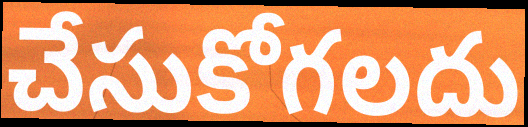
చేసుకోగలదు